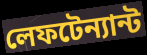
লেফটেন্যান্ট